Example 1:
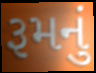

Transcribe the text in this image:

રૂમનું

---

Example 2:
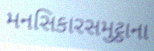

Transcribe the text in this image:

મનસિકારસમુટ્ઠાના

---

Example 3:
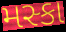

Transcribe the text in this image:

મસ્કા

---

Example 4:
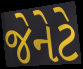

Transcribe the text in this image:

જેનેટે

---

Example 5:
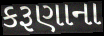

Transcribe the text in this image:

કરૂણાના